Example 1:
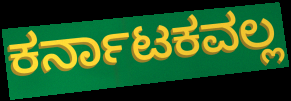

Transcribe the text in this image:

ಕರ್ನಾಟಕವಲ್ಲ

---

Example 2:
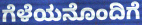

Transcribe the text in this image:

ಗೆಳೆಯನೊಂದಿಗೆ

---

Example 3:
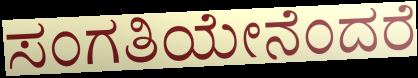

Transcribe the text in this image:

ಸಂಗತಿಯೇನೆಂದರೆ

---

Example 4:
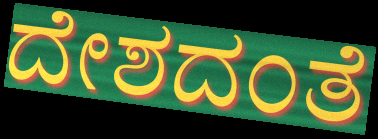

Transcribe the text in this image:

ದೇಶದಂತೆ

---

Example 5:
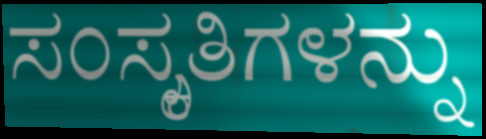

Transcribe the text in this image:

ಸಂಸ್ಕೃತಿಗಳನ್ನು